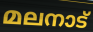
മലനാട്